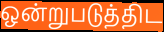
ஒன்றுபடுத்திட